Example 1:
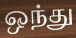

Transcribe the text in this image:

ஒந்து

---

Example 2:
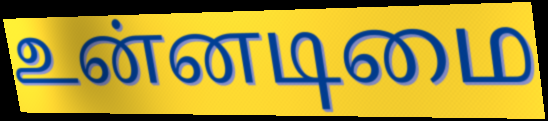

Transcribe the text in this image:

உன்னடிமை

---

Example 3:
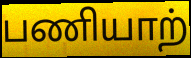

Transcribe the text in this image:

பணியாற்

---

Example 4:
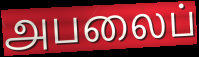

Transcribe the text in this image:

அபலைப்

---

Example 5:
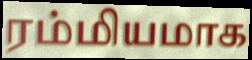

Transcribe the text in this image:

ரம்மியமாக